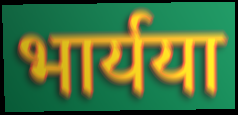
भार्यया